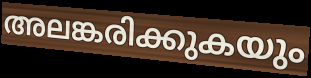
അലങ്കരിക്കുകയും